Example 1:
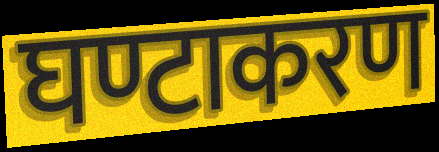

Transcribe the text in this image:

घण्टाकरण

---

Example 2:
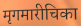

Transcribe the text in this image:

मृगमारीचिका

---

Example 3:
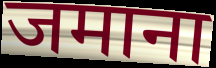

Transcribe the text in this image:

जमाना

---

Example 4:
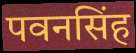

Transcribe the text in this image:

पवनसिंह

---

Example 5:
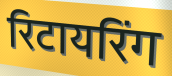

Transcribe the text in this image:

रिटायरिंग